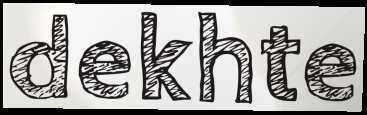
dekhte